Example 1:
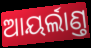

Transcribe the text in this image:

ଆୟର୍ଲାଣ୍ତ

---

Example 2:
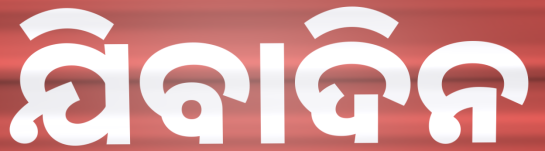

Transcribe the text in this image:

ଯିବାଦିନ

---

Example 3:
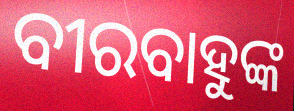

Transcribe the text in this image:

ବୀରବାହୁଙ୍କ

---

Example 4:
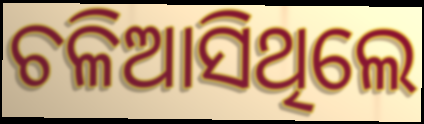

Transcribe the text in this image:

ଚଳିଆସିଥିଲେ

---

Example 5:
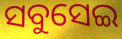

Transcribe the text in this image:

ସବୁସେଇ